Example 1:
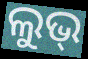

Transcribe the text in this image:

ଲୁଭ୍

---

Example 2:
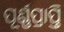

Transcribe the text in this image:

ପୂର୍ଣ୍ଣପ୍ରାପ୍ତି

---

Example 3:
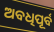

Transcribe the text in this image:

ଅବଧିପୂର୍ବ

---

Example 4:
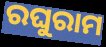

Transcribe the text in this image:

ରଘୁରାମ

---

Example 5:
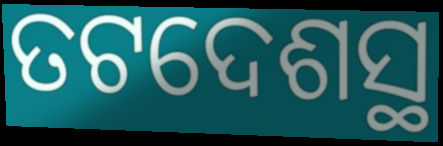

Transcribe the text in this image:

ତଟଦେଶସ୍ଥ